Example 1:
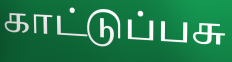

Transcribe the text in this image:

காட்டுப்பசு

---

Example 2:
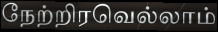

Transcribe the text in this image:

நேற்றிரவெல்லாம்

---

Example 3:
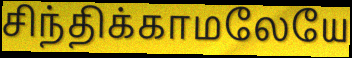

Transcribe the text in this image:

சிந்திக்காமலேயே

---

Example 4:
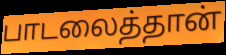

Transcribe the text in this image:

பாடலைத்தான்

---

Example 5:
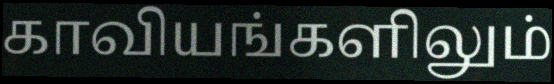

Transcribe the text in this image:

காவியங்களிலும்